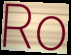
Ro